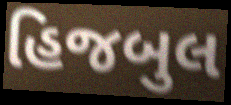
હિજબુલ